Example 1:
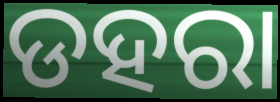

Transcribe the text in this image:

ଡହରା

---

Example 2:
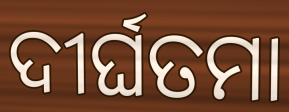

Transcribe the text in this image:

ଦୀର୍ଘତମା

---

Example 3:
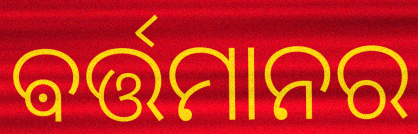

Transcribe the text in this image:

ଵର୍ତ୍ତମାନର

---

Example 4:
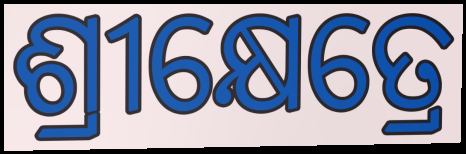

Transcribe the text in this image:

ଶ୍ରୀକ୍ଷେତ୍ରେ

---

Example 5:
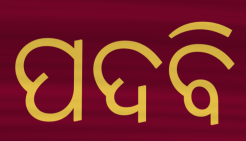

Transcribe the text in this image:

ପଦବି